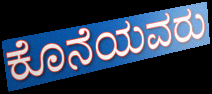
ಕೊನೆಯವರು